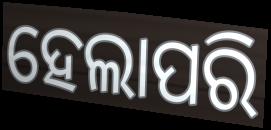
ହେଲାପରି